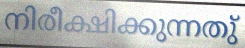
നിരീക്ഷിക്കുന്നതു്